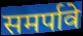
समर्पावे